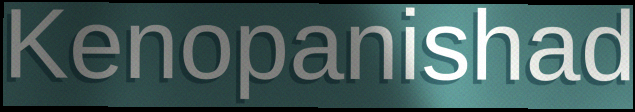
Kenopanishad